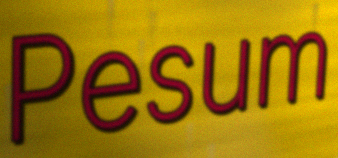
Pesum